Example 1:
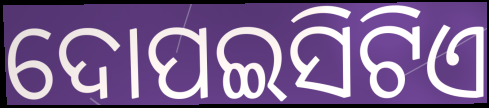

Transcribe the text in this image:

ଦୋପଇସିଟିଏ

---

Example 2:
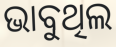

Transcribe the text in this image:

ଭାବୁଥିଲ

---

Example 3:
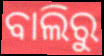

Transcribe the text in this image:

ବାଲିରୁ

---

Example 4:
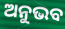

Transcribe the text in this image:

ଅନୁଭବ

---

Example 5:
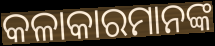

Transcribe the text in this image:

କଳାକାରମାନଙ୍କ